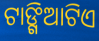
ଟାଙ୍ଗିଆଟିଏ